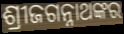
ଶ୍ରୀଜଗନ୍ନାଥଙ୍କର